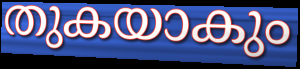
തുകയാകും